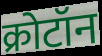
क्रोटॉन